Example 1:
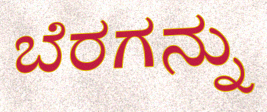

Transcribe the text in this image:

ಬೆರಗನ್ನು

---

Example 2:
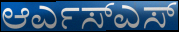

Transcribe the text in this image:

ಆರ್ಎಸ್ಎಸ್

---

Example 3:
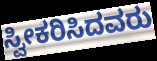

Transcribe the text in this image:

ಸ್ವೀಕರಿಸಿದವರು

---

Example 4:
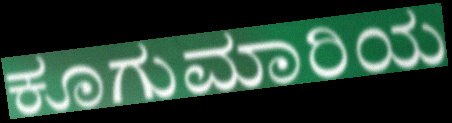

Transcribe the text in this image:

ಕೂಗುಮಾರಿಯ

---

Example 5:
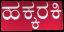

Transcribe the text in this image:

ಹಕ್ಕರಕಿ